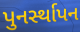
પુનર્સ્થાપન